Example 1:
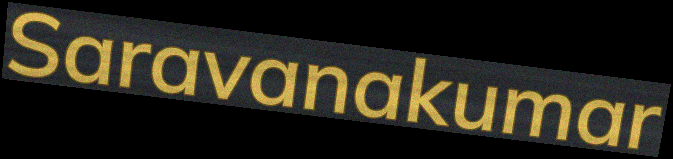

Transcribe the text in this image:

Saravanakumar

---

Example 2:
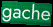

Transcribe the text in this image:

gache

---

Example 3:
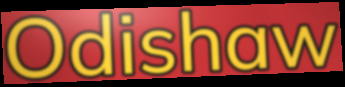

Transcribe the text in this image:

Odishaw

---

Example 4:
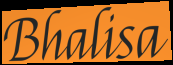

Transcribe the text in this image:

Bhalisa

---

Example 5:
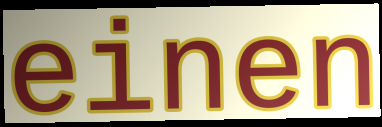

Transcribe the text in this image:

einen